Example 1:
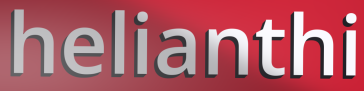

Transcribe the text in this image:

helianthi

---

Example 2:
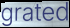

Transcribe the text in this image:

grated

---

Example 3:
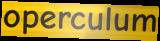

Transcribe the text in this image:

operculum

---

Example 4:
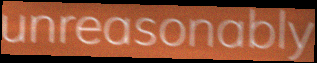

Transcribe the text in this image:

unreasonably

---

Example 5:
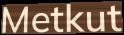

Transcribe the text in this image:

Metkut